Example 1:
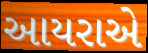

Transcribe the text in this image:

આયરાએ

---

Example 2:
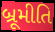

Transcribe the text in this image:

બ્રૂમીતિ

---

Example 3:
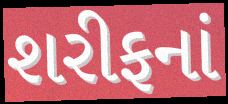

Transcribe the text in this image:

શરીફનાં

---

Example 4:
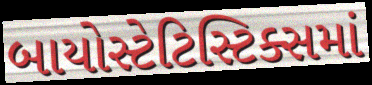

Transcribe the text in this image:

બાયોસ્ટેટિસ્ટિક્સમાં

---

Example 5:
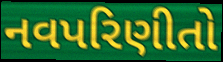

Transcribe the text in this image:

નવપરિણીતો